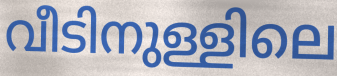
വീടിനുള്ളിലെ